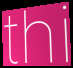
thi